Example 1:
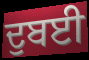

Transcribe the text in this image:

ਦੁਬਈ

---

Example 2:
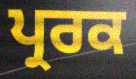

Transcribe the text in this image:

ਪ੍ਰਰਕ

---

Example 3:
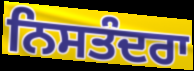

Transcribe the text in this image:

ਨਿਸਤੰਦਰਾ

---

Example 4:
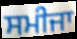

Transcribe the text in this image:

ਸਮੀਜਾ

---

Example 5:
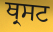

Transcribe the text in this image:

ਥ੍ਰਸਟ